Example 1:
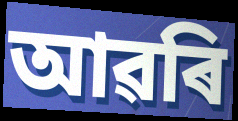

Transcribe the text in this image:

আৱৰি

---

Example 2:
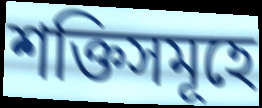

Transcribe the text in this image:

শক্তিসমূহে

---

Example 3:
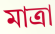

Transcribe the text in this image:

মাত্ৰা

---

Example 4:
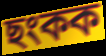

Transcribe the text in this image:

ছংকক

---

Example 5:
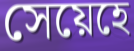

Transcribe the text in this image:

সেয়েহে